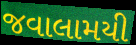
જવાલામયી